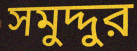
সমুদ্দুর